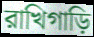
রাখিগাড়ি